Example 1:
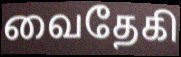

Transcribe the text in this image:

வைதேகி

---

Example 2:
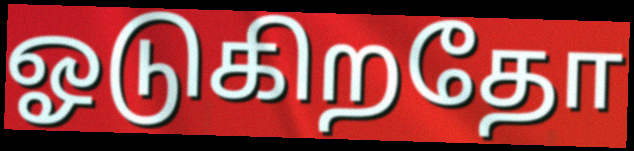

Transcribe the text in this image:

ஓடுகிறதோ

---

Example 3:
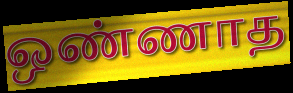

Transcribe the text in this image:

ஒண்ணாத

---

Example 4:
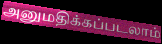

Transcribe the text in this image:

அனுமதிக்கப்படலாம்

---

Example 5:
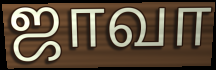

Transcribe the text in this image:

ஜாவா